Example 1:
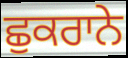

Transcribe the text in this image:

ਛੁਕਰਾਨੇ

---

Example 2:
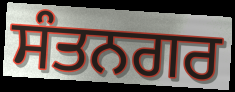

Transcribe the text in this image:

ਸੰਤਨਗਰ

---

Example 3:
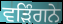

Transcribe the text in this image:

ਵੜਿੰਗਨੇ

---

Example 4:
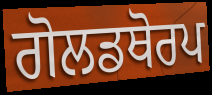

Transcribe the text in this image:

ਗੋਲਡਥੋਰਪ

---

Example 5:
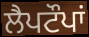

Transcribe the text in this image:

ਲੈਪਟੌਪਾਂ